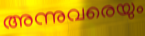
അന്നുവരെയും